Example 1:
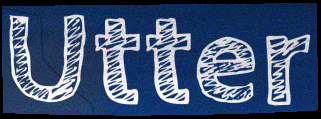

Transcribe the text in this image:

Utter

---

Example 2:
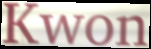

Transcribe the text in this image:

Kwon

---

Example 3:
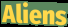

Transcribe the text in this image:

Aliens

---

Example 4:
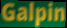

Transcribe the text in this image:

Galpin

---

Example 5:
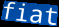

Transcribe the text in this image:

fiat